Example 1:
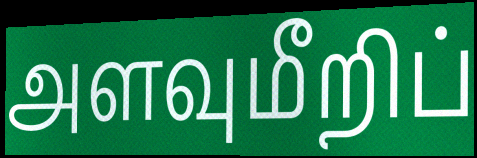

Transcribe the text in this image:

அளவுமீறிப்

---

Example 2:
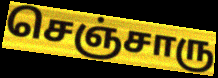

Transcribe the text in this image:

செஞ்சாரு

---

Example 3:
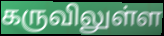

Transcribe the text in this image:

கருவிலுள்ள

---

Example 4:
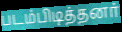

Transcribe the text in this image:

படம்பிடித்தனர்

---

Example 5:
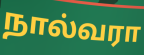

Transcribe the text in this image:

நால்வரா